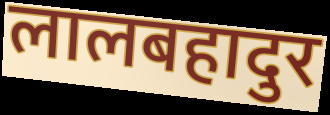
लालबहादुर